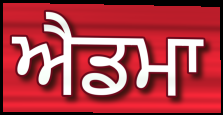
ਐਡਮਾ